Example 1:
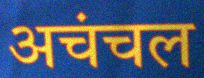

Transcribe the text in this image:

अचंचल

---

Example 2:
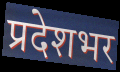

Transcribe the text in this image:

प्रदेशभर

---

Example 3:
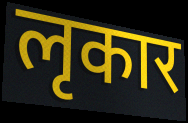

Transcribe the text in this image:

लृकार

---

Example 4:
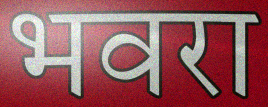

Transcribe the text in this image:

भवरा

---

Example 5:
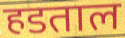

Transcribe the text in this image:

हडताल